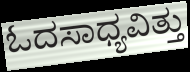
ಓದಸಾಧ್ಯವಿತ್ತು